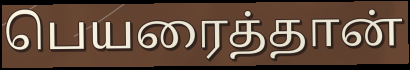
பெயரைத்தான்